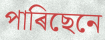
পাৰিছেনে